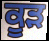
ਕੂੜ